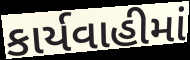
કાર્યવાહીમાં